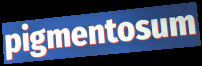
pigmentosum